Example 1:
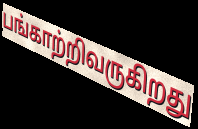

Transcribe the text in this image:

பங்காற்றிவருகிறது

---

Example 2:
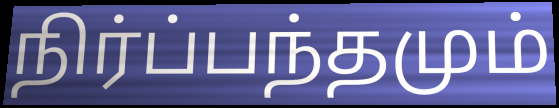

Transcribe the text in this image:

நிர்ப்பந்தமும்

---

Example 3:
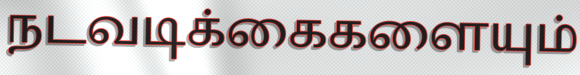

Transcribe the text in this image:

நடவடிக்கைகளையும்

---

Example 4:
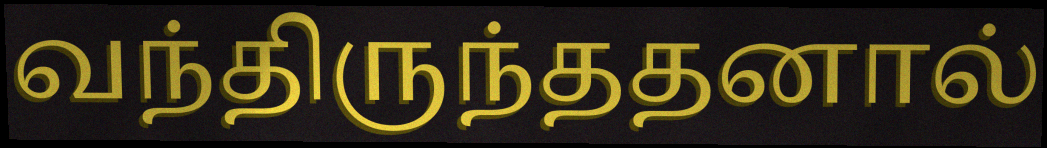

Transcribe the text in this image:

வந்திருந்ததனால்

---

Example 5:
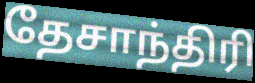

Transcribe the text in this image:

தேசாந்திரி